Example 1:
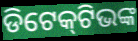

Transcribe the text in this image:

ଡିଟେକ୍‌ଟିଭଙ୍କ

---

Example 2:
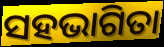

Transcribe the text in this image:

ସହଭାଗିତା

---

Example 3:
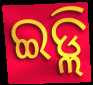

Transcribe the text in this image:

ଇଡ୍ଲି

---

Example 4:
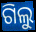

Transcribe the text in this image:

ଗିଲୁ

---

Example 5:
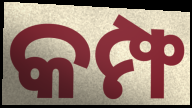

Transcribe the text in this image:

କମ୍ଫ